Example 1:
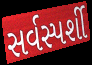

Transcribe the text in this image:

સર્વસ્પર્શી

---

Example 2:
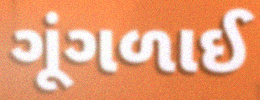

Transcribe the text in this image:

ગૂંગળાઈ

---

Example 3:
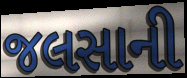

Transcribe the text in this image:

જલસાની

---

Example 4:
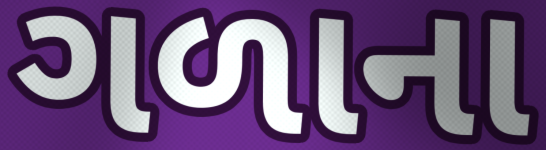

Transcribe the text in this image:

ગળાના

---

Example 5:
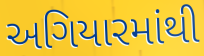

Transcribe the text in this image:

અગિયારમાંથી